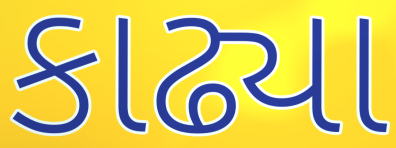
કાઢ્યા